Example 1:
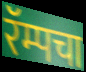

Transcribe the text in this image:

रॅम्पचा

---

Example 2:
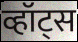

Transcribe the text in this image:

व्हॉट्स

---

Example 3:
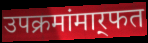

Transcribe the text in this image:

उपक्रमांमार्फत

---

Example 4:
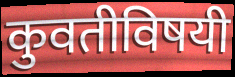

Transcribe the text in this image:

कुवतीविषयी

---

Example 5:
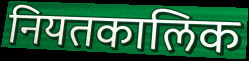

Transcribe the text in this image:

नियतकालिक